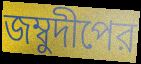
জম্বুদীপের